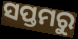
ସପ୍ତମରୁ